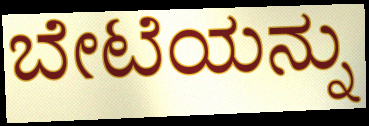
ಬೇಟೆಯನ್ನು